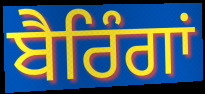
ਬੈਰਿੰਗਾਂ